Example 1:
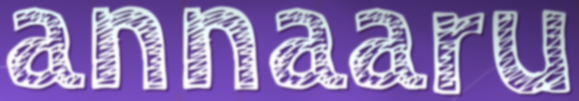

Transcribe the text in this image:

annaaru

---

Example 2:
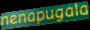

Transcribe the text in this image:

nenapugala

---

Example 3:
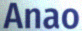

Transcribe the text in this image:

Anao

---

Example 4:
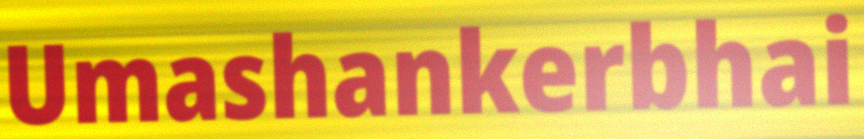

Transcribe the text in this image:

Umashankerbhai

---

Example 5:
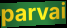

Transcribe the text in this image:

parvai